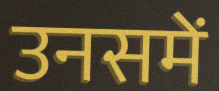
उनसमें